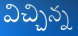
విచ్చిన్న